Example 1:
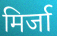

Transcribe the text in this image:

मिर्जा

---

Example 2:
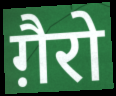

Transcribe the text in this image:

ग़ैरो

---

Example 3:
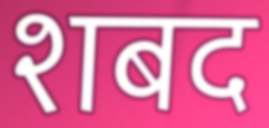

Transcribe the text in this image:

शबद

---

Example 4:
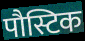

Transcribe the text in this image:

पौस्टिक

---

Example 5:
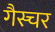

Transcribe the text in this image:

गैस्चर